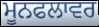
ਮੂਨਫਲਾਵਰ